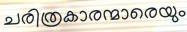
ചരിത്രകാരന്മാരെയും